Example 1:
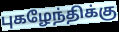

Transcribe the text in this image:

புகழேந்திக்கு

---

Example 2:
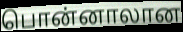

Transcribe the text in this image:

பொன்னாலான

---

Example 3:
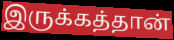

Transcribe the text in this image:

இருக்கத்தான்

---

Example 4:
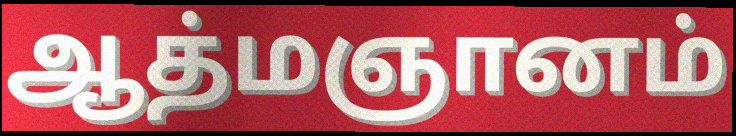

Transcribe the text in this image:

ஆத்மஞானம்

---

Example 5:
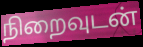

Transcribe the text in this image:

நிறைவுடன்